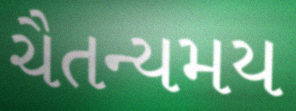
ચૈતન્યમય